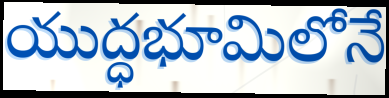
యుద్ధభూమిలోనే